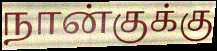
நான்குக்கு